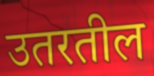
उतरतील